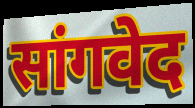
सांगवेद